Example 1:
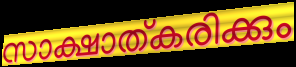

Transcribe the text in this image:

സാക്ഷാത്കരിക്കും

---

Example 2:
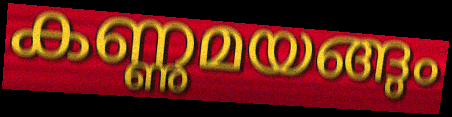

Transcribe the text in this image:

കണ്ണുമയങ്ങും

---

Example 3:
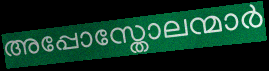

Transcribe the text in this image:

അപ്പോസ്തോലന്മാർ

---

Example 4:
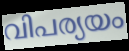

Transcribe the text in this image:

വിപര്യയം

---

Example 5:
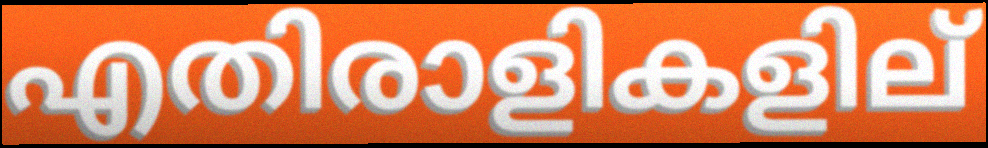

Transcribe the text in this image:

എതിരാളികളില്